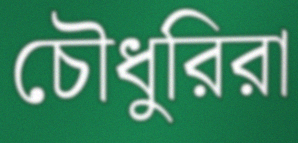
চৌধুরিরা